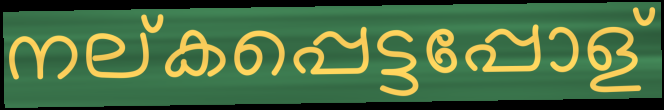
നല്കപ്പെട്ടപ്പോള്